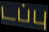
டப்பு